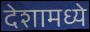
देशामध्ये